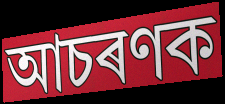
আচৰণক